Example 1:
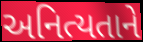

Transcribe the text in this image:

અનિત્યતાને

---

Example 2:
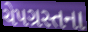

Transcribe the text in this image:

ચેપગ્રસ્તના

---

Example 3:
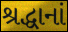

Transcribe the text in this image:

શ્રદ્ધાનાં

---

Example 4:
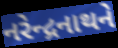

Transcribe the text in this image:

નરેન્દ્રનાથને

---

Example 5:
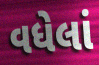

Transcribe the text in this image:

વધેલાં